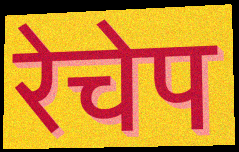
रेचेप